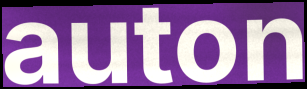
auton